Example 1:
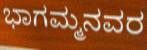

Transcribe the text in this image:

ಭಾಗಮ್ಮನವರ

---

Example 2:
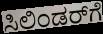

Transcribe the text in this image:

ಸಿಲಿಂಡರ್‌ಗೆ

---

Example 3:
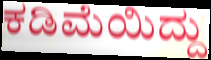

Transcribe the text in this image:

ಕಡಿಮೆಯಿದ್ದು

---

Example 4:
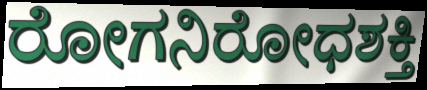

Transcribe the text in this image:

ರೋಗನಿರೋಧಶಕ್ತಿ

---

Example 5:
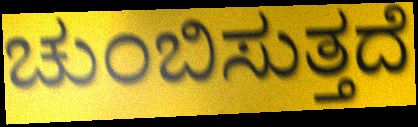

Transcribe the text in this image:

ಚುಂಬಿಸುತ್ತದೆ